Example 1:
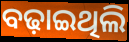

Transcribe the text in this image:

ବଢ଼ାଇଥିଲି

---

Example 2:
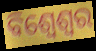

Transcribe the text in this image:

ବିଶ୍ୱେଶ୍ୱର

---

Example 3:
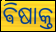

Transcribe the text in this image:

ଵିଷାକ୍ତ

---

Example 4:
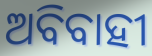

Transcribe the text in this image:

ଅବିବାହୀ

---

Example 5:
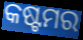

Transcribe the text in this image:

କଷ୍ଟମର